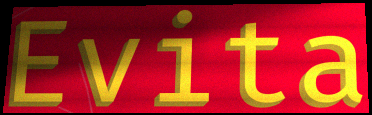
Evita